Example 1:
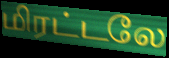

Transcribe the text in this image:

மிரட்டலே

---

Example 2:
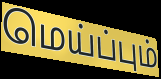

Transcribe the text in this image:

மெய்ப்பும்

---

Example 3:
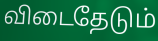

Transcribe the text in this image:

விடைதேடும்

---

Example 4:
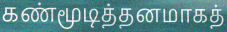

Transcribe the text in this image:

கண்மூடித்தனமாகத்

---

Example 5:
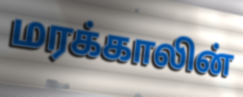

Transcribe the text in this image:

மரக்காலின்